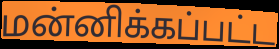
மன்னிக்கப்பட்ட